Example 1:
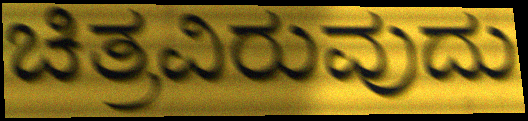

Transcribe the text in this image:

ಚಿತ್ರವಿರುವುದು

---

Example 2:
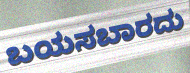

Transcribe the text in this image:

ಬಯಸಬಾರದು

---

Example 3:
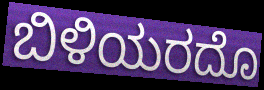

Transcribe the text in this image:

ಬಿಳಿಯರದೊ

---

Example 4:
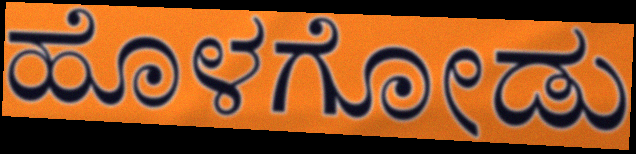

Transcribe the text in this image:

ಹೊಳಗೋಡು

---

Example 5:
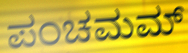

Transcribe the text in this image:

ಪಂಚಮಮ್